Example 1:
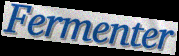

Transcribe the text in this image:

Fermenter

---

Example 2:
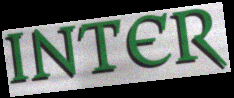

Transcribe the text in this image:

INTER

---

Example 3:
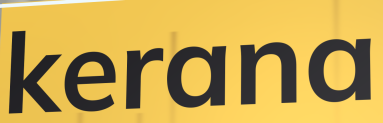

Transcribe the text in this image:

kerana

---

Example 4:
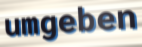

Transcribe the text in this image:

umgeben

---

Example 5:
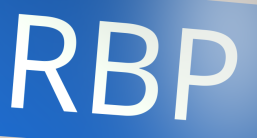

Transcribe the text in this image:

RBP